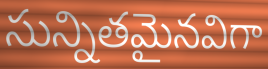
సున్నితమైనవిగా